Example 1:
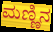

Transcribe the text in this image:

ಮಣ್ಣಿನ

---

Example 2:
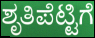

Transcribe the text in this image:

ಶೃತಿಪೆಟ್ಟಿಗೆ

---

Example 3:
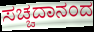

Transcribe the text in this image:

ಸಚ್ಚದಾನಂದ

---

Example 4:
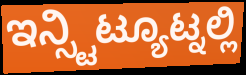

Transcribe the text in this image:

ಇನ್ಸ್ಟಿಟ್ಯೂಟ್ನಲ್ಲಿ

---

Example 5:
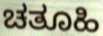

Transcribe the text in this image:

ಚತೂಹಿ